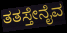
ತತಸ್ತೇನೈವ